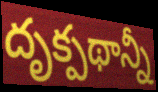
దృక్పథాన్నీ